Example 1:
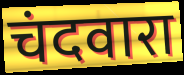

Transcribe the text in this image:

चंदवारा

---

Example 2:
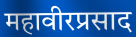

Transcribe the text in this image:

महावीरप्रसाद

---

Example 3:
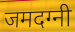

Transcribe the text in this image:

जमदग्नी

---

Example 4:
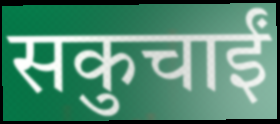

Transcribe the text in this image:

सकुचाईं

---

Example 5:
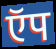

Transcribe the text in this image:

ऍप